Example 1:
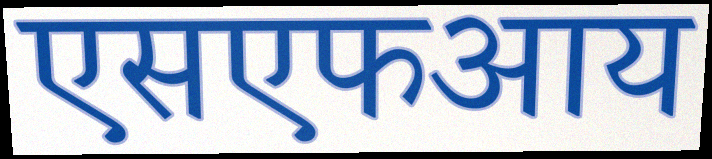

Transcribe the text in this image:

एसएफआय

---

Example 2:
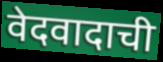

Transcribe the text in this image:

वेदवादाची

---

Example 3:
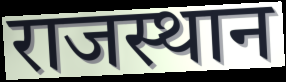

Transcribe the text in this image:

राजस्थान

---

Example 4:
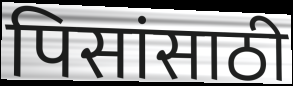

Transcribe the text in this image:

पिसांसाठी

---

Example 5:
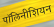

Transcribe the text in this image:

पॉलिनीशियन